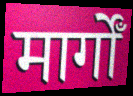
मार्गोँ